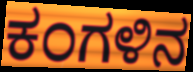
ಕಂಗಳಿನ